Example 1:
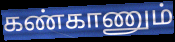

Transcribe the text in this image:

கண்காணும்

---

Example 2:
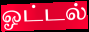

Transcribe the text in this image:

ஓட்டல்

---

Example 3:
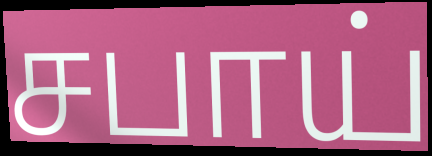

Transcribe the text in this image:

சபாய்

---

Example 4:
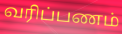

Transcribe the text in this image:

வரிப்பணம்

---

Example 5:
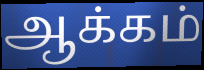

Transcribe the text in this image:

ஆக்கம்